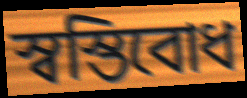
স্বস্তিবোধ